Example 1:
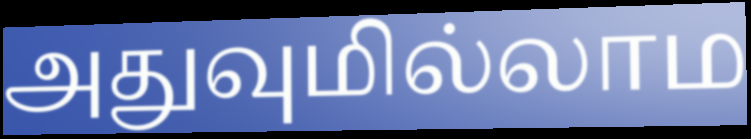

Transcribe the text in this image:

அதுவுமில்லாம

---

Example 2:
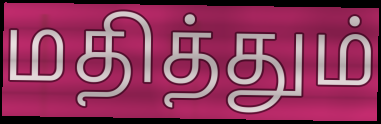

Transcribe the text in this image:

மதித்தும்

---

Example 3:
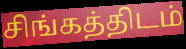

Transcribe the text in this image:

சிங்கத்திடம்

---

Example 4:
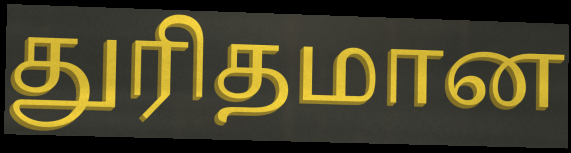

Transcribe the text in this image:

துரிதமான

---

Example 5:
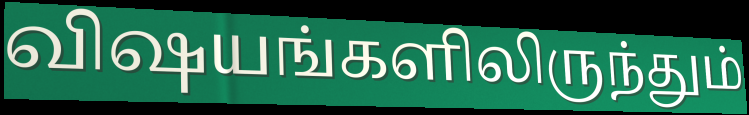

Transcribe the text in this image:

விஷயங்களிலிருந்தும்